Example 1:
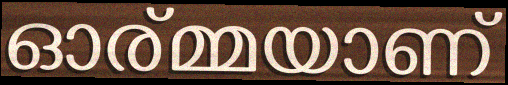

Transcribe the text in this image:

ഓര്മ്മയാണ്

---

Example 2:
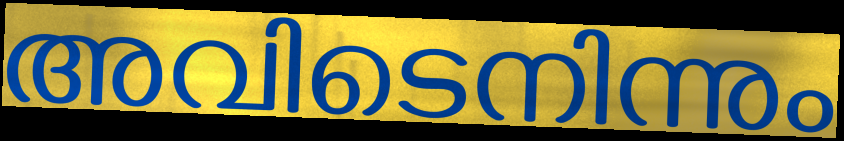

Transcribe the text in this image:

അവിടെനിന്നും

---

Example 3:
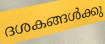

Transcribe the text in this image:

ദശകങ്ങൾക്കു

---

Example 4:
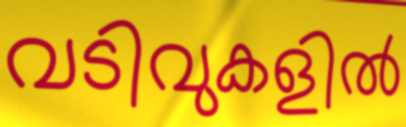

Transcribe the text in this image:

വടിവുകളിൽ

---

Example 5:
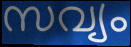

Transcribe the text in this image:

സവ്യം